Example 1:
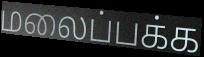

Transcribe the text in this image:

மலைப்பக்க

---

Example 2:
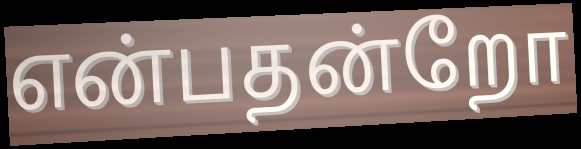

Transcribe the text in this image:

என்பதன்றோ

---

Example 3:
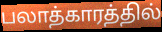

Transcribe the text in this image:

பலாத்காரத்தில்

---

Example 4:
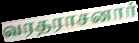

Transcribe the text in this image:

வரதராசனார்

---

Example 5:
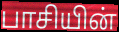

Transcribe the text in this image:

பாசியின்